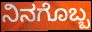
ನಿನಗೊಬ್ಬ